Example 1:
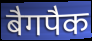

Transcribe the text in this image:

बैगपैक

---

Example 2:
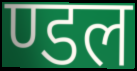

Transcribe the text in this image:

ण्डल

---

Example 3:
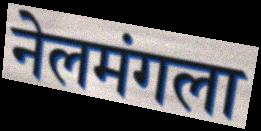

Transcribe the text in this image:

नेलमंगला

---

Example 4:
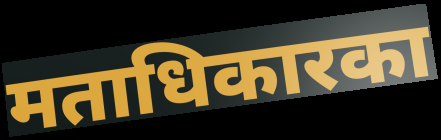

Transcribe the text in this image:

मताधिकारका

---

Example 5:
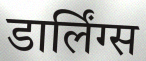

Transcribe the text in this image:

डार्लिंग्स